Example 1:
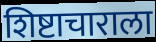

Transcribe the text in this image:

शिष्टाचाराला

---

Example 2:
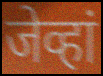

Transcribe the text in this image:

जेव्हां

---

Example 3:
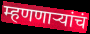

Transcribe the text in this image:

म्हणणाऱ्यांचं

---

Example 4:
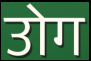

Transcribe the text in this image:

उोग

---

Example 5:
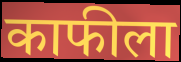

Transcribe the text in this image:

काफीला